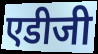
एडीजी